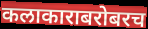
कलाकाराबरोबरच